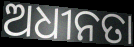
ଅଧୀନତା